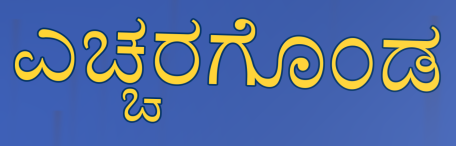
ಎಚ್ಚರಗೊಂಡ